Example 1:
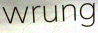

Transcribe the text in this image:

wrung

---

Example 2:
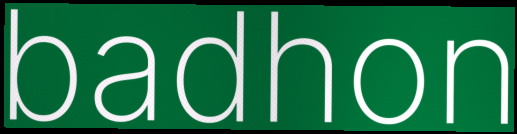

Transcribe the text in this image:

badhon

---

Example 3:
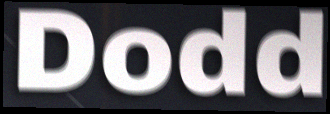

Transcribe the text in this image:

Dodd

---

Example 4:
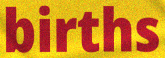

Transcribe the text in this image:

births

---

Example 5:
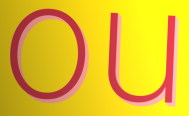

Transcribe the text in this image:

ou